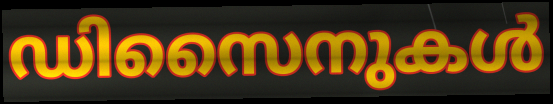
ഡിസൈനുകൾ